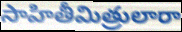
సాహితీమిత్రులారా